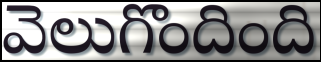
వెలుగొందింది